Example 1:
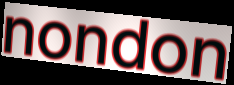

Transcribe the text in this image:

nondon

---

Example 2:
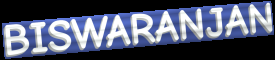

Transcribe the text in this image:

BISWARANJAN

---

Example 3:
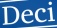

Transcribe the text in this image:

Deci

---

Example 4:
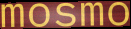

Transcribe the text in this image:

mosmo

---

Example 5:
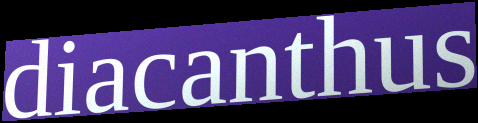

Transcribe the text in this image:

diacanthus